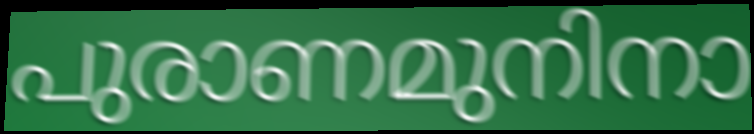
പുരാണമുനിനാ